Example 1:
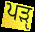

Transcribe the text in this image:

ਪੜੵ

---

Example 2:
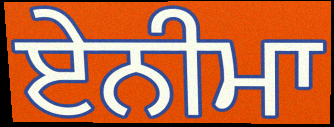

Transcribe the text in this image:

ਏਨੀਮਾ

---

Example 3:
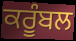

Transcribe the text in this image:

ਕਰੂੰਬਲ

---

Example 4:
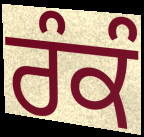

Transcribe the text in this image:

ਰੰਕੰ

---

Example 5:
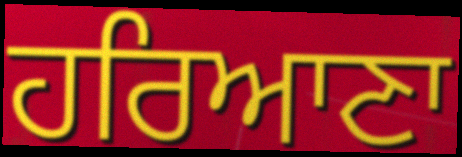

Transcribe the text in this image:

ਹਰਿਆਣਾ